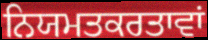
ਨਿਯਮਤਕਰਤਾਵਾਂ